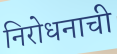
निरोधनाची